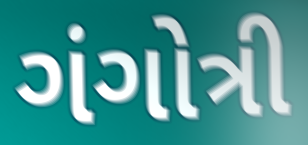
ગંગોત્રી